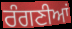
ਰੰਗਣੀਆਂ